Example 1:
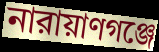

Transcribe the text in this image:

নারায়াণগঞ্জে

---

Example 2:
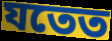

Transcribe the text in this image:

যতেত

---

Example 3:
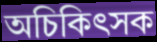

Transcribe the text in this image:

অচিকিৎসক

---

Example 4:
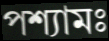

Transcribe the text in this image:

পশ্যামঃ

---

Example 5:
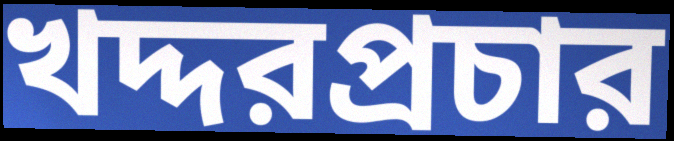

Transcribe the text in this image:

খদ্দরপ্রচার